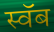
स्वॅब